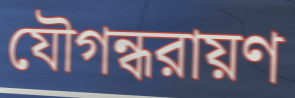
যৌগন্ধরায়ণ